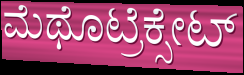
ಮೆಥೊಟ್ರೆಕ್ಸೇಟ್